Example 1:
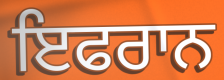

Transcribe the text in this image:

ਇਫਰਾਨ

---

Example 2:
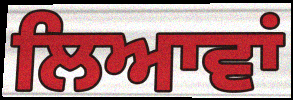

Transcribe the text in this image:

ਲਿਆਵਾਂ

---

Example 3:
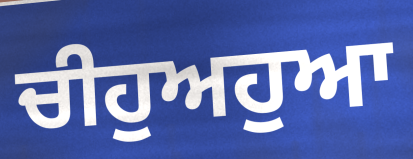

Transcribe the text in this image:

ਚੀਹੁਅਹੁਆ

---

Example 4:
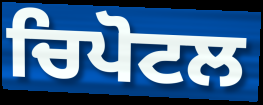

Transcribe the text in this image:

ਚਿਪੋਟਲ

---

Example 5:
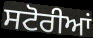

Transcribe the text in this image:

ਸਟੋਰੀਆਂ